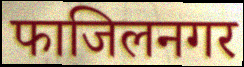
फाजिलनगर